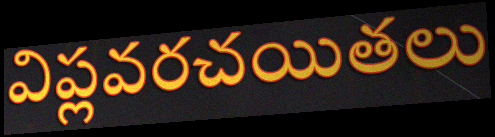
విప్లవరచయితలు